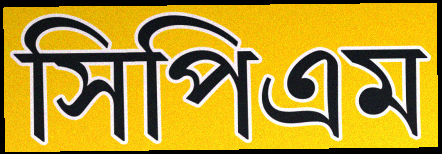
সিপিএম